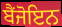
ਬੈਂਜੋਇਨ